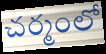
చర్మంలో